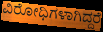
ವಿರೋಧಿಗಳಾಗಿದ್ದರೆ